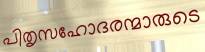
പിതൃസഹോദരന്മാരുടെ